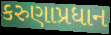
કરુણાપ્રધાન